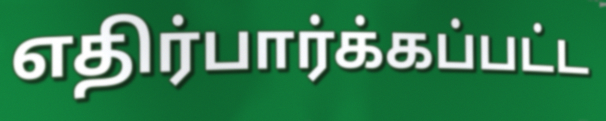
எதிர்பார்க்கப்பட்ட